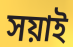
সয়াই